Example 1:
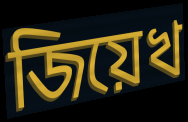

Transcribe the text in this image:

জিয়েখ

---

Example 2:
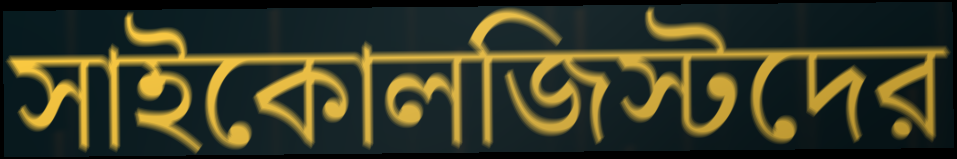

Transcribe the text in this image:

সাইকোলজিস্টদের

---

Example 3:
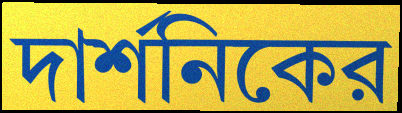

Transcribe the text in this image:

দার্শনিকের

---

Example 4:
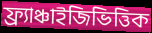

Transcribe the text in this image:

ফ্র্যাঞ্চাইজিভিত্তিক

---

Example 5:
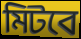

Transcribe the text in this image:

মিটবে